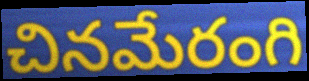
చినమేరంగి